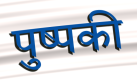
पुष्पकी